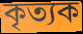
কৃত্যক